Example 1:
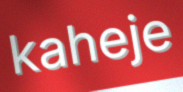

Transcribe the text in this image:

kaheje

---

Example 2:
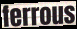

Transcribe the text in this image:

ferrous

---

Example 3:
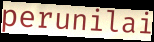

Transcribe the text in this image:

perunilai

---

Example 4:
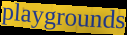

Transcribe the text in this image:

playgrounds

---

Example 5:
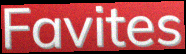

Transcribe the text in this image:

Favites